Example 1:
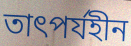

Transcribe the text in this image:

তাৎপর্যহীন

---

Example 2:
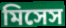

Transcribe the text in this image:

মিসেস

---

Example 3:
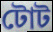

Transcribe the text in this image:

টোট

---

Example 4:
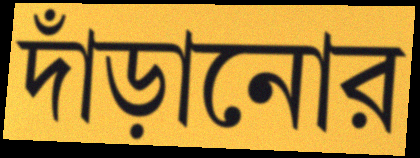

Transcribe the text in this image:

দাঁড়ানোর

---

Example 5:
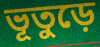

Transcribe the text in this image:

ভূতুড়ে